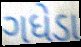
ગધેડા